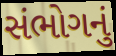
સંભોગનું